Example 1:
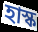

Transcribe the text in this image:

হাস্ক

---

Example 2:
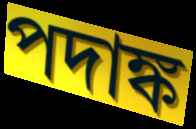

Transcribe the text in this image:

পদাঙ্ক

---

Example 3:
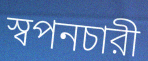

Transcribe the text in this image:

স্বপনচারী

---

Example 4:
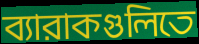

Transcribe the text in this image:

ব্যারাকগুলিতে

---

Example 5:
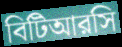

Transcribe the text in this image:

বিটিআরসি